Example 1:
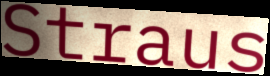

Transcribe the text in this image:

Straus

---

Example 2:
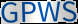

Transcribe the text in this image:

GPWS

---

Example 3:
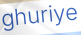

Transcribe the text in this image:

ghuriye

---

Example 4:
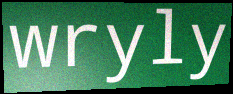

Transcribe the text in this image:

wryly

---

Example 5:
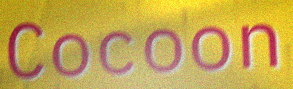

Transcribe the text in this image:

Cocoon